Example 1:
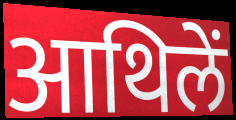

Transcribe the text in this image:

आथिलें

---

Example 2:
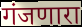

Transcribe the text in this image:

गंजणारा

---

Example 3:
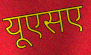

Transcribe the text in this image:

यूएसए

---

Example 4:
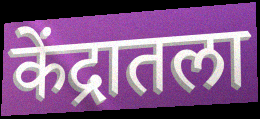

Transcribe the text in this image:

केंद्रातला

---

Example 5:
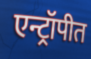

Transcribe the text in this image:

एन्ट्रॉपीत